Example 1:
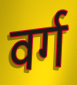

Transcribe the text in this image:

वर्ग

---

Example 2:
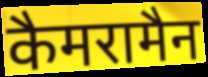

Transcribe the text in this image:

कैमरामैन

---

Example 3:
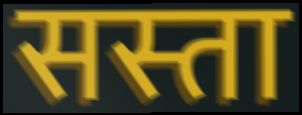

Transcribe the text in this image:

सस्ता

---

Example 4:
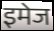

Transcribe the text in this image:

इमेज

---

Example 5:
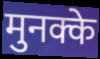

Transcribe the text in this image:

मुनक्के